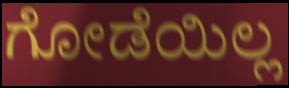
ಗೋಡೆಯಿಲ್ಲ